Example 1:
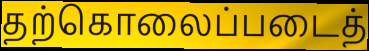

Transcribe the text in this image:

தற்கொலைப்படைத்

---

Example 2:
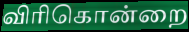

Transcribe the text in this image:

விரிகொன்றை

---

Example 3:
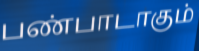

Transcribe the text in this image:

பண்பாடாகும்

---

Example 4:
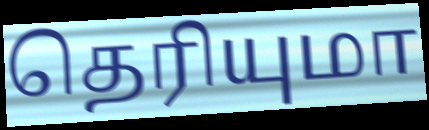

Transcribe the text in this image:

தெரியுமா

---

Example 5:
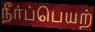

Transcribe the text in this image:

நீர்ப்பெயற்